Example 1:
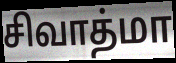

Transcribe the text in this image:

சிவாத்மா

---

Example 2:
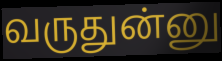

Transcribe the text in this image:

வருதுன்னு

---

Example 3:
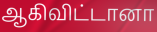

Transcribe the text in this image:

ஆகிவிட்டானா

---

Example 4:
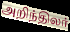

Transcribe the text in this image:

அறிந்திலர்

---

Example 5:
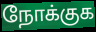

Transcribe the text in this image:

நோக்குக